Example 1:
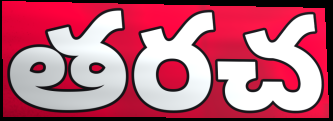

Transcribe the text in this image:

తరచ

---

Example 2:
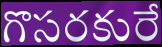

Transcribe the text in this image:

గొసరకురే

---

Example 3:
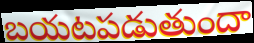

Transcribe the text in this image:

బయటపడుతుందా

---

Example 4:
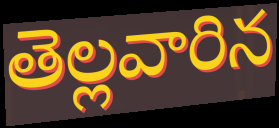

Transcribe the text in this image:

తెల్లవారిన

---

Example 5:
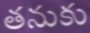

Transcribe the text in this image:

తనుకు